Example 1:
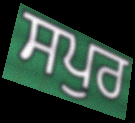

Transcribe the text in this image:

ਸਪੁਰ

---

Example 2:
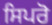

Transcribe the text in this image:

ਸਿਪਰੋ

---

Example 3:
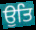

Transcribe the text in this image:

ਉਤਿ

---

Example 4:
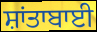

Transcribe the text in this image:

ਸ਼ਾਂਤਾਬਾਈ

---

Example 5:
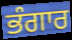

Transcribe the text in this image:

ਭੰਗਾਰ